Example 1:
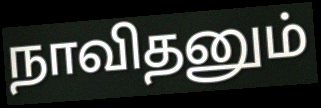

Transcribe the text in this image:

நாவிதனும்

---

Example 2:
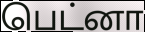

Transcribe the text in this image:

பெட்னா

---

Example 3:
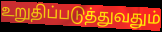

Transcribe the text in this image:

உறுதிப்படுத்துவதும்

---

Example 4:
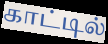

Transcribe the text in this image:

காட்டில்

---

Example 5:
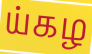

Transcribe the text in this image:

ய்கழ